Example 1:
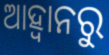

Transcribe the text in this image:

ଆହ୍ବାନରୁ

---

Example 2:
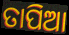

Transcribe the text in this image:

ତାପିଆ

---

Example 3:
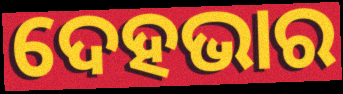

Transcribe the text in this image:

ଦେହଭାର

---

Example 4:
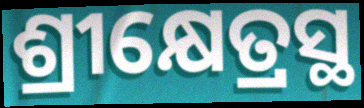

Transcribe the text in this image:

ଶ୍ରୀକ୍ଷେତ୍ରସ୍ଥ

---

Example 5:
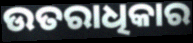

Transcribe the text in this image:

ଉତରାଧିକାର